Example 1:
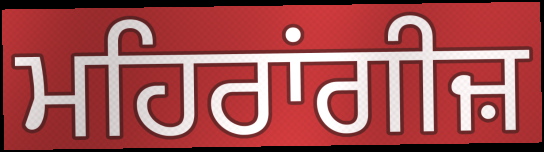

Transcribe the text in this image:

ਮਹਿਰਾਂਗੀਜ਼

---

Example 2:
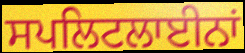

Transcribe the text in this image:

ਸਪਲਿਟਲਾਈਨਾਂ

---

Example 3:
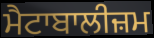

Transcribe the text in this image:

ਮੈਟਾਬਾਲੀਜ਼ਮ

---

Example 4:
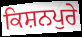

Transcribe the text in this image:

ਕਿਸ਼ਨਪੁਰੇ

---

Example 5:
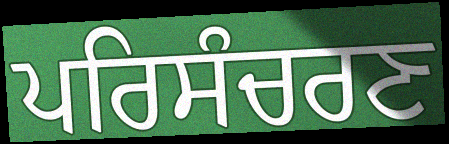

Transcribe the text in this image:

ਪਰਿਸੰਚਰਣ